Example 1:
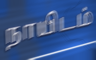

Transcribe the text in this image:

நாயிடம்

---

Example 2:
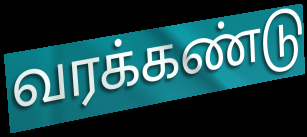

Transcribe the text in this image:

வரக்கண்டு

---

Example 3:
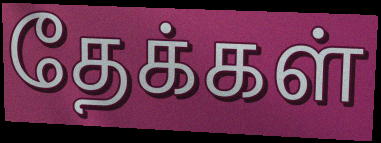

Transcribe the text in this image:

தேக்கள்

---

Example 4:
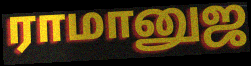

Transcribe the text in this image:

ராமானுஜ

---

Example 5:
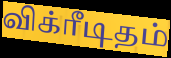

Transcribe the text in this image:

விக்ரீடிதம்